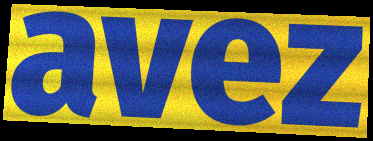
avez